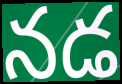
నడ